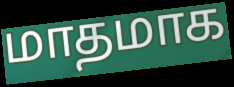
மாதமாக